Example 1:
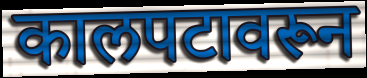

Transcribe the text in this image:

कालपटावरून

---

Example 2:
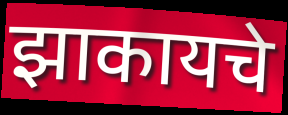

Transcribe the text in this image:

झाकायचे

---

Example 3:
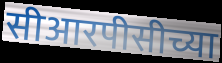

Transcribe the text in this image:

सीआरपीसीच्या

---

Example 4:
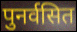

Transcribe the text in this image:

पुनर्वसित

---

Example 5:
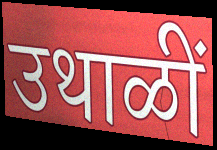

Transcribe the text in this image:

उथाळीं